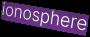
ionosphere